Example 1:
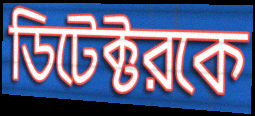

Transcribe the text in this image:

ডিটেক্টরকে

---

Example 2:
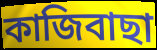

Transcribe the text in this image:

কাজিবাছা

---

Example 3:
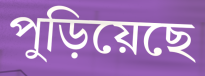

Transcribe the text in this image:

পুড়িয়েছে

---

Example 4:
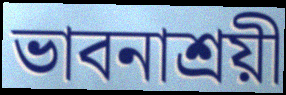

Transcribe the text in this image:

ভাবনাশ্রয়ী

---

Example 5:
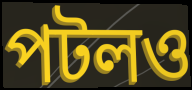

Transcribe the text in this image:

পটলও